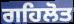
ਗਹਿਲੋਤ